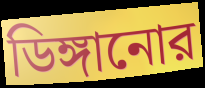
ডিঙ্গানোর